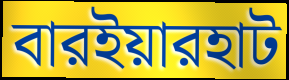
বারইয়ারহাট